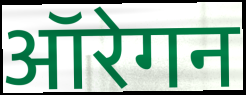
ऑरेगन